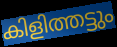
കിളിത്തട്ടും